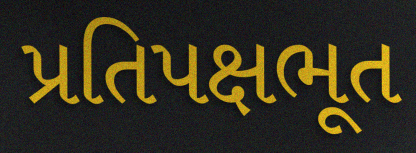
પ્રતિપક્ષભૂત